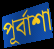
পূর্বাশা